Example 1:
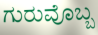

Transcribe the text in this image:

ಗುರುವೊಬ್ಬ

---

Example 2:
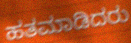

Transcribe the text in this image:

ಹತಮಾಡಿದರು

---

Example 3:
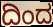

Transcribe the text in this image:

ದಿಂದ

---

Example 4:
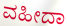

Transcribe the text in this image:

ವಹೀದಾ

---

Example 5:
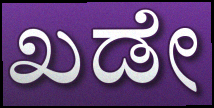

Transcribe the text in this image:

ಖಡೇ